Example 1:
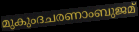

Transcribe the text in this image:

മുകുംദചരണാംബുജമ്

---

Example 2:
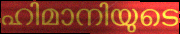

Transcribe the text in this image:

ഹിമാനിയുടെ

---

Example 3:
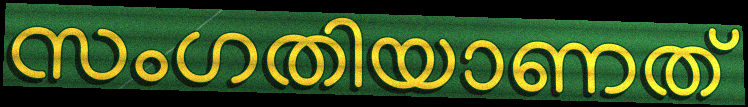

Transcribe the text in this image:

സംഗതിയാണത്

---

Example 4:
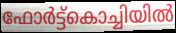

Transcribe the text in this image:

ഫോർട്ട്കൊച്ചിയിൽ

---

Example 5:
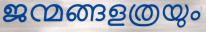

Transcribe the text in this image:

ജന്മങ്ങളത്രയും